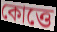
কোত্তে